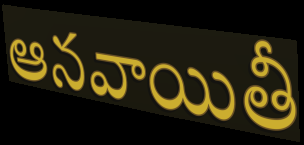
ఆనవాయితీ